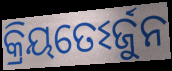
କ୍ରିୟତେଽର୍ଜୁନ